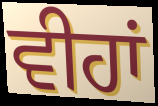
ਵੀਹਾਂ